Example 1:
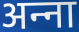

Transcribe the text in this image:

अन्ना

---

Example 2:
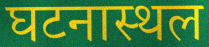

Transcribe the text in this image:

घटनास्थल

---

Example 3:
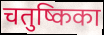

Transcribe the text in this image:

चतुष्किका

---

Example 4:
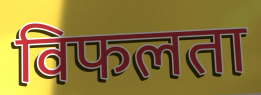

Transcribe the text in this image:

विफलता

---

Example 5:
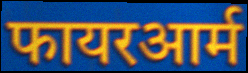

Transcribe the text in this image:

फायरआर्म